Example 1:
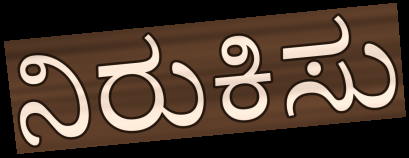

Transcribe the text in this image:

ನಿರುಕಿಸು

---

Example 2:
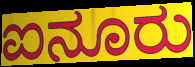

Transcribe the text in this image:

ಐನೂರು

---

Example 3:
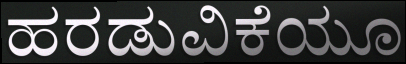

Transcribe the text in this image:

ಹರಡುವಿಕೆಯೂ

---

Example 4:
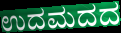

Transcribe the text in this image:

ಉದಮದದ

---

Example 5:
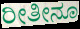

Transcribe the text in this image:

ರೀತೀನೂ